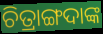
ଚିତ୍ରାଙ୍ଗଦାଙ୍କ